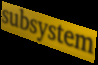
subsystem